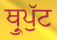
ਥ੍ਰੁਪੁੱਟ